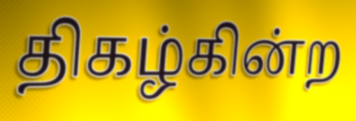
திகழ்கின்ற